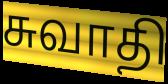
சுவாதி